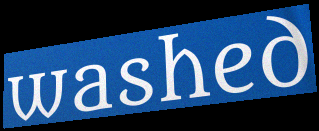
washed